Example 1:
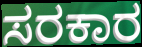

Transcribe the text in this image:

ಸರಕಾರ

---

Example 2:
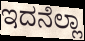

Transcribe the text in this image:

ಇದನೆಲ್ಲಾ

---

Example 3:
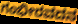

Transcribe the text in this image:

ಗಂಭೀರವದನ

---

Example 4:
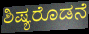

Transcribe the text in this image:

ಶಿಷ್ಯರೊಡನೆ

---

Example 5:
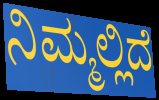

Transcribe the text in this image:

ನಿಮ್ಮಲ್ಲಿದೆ